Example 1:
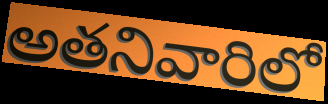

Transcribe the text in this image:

అతనివారిలో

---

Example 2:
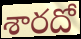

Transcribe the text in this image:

శారదో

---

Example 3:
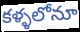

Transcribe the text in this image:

కళ్ళలోనూ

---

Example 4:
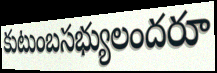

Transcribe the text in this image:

కుటుంబసభ్యులందరూ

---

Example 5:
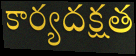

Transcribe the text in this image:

కార్యదక్షత